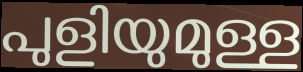
പുളിയുമുള്ള